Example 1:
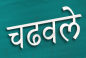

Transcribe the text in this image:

चढवले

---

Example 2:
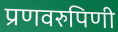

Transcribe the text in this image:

प्रणवरुपिणी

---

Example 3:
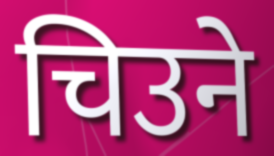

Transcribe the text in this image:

चिउने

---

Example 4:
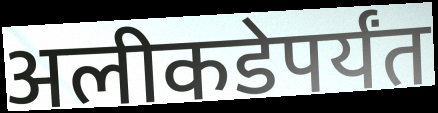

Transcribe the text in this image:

अलीकडेपर्यंत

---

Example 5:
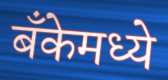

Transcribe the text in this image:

बँकेमध्ये